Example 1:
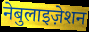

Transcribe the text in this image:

नेबुलाइज़ेशन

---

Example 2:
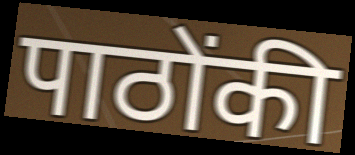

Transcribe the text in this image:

पाठोंकी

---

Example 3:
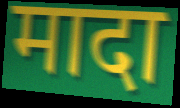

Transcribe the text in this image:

मादा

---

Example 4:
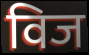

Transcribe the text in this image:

विज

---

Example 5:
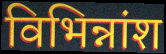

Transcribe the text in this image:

विभिन्नांश